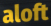
aloft